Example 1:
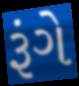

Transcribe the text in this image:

રૂંગે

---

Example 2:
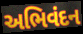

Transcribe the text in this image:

અભિવંદન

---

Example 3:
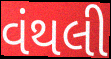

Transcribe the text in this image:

વંથલી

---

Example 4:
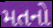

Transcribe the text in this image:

મતનો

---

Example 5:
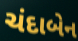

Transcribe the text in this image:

ચંદાબેન